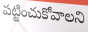
పట్టించుకోవాలని